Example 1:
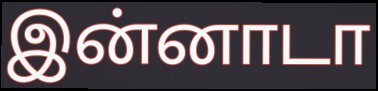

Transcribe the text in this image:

இன்னாடா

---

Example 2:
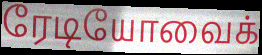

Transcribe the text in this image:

ரேடியோவைக்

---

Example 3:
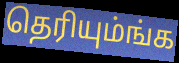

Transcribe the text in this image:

தெரியும்ங்க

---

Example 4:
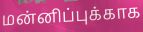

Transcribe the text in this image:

மன்னிப்புக்காக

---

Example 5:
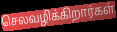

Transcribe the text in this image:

செலவழிக்கிறார்கள்